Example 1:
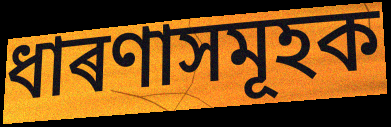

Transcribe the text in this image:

ধাৰণাসমূহক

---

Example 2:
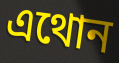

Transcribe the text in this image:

এথোন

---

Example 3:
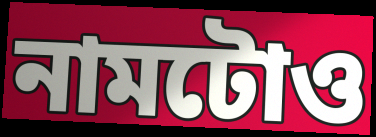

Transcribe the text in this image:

নামটোও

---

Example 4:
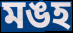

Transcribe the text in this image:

মঙহ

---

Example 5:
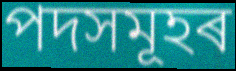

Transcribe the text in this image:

পদসমূহৰ